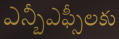
ఎన్బీఎఫ్సీలకు